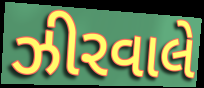
ઝીરવાલે